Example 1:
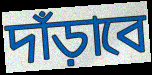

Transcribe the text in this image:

দাঁড়াবে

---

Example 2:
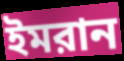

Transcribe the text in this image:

ইমরান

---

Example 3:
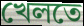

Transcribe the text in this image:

খেলতে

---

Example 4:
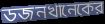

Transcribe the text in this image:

ডজনখানেকের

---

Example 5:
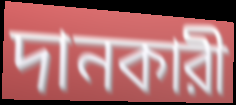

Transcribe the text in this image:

দানকারী